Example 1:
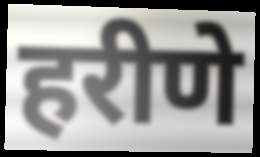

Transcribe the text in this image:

हरीणे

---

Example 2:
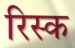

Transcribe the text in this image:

रिस्क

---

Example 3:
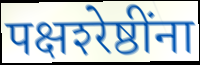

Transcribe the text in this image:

पक्षश्रेष्ठींना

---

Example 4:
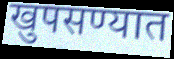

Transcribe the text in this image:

खुपसण्यात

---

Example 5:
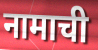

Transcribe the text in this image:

नामाची